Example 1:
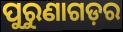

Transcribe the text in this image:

ପୁରୁଣାଗଡ଼ର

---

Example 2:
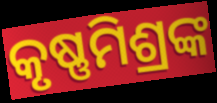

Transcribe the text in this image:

କୃଷ୍ଣମିଶ୍ରଙ୍କ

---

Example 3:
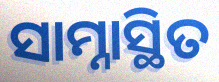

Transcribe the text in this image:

ସାମ୍ନାସ୍ଥିତ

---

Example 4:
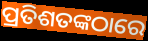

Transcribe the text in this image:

ପ୍ରତିଶତଙ୍କଠାରେ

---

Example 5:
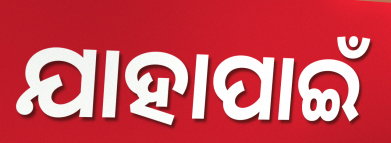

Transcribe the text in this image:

ଯାହାପାଇଁ